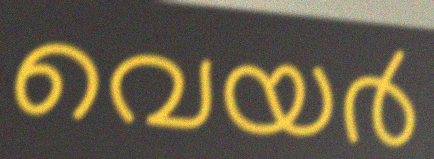
വെയർ